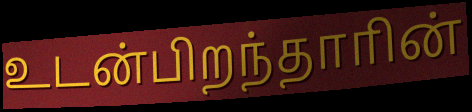
உடன்பிறந்தாரின்